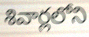
శివార్లలోని